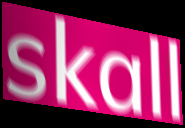
skall